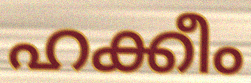
ഹക്കീം